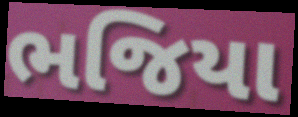
ભજિયા